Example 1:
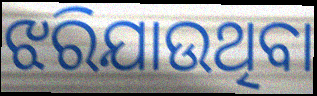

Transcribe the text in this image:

ଝରିଯାଉଥିବା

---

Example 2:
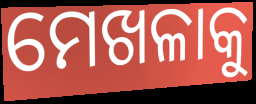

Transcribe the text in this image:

ମେଖଳାକୁ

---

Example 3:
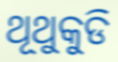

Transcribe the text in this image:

ଥୂଥୁକୁଡି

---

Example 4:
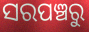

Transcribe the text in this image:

ସରପଞ୍ଚରୁ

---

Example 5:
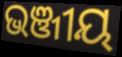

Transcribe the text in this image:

ଭଞ୍ଜୀୟ